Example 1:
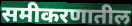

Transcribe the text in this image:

समीकरणातील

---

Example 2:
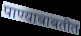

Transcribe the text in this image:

पाण्याबाबतीत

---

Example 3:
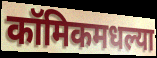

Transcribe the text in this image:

कॉमिकमधल्या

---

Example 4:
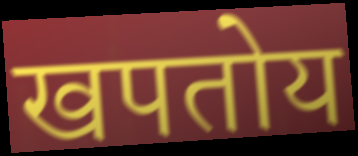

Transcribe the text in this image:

खपतोय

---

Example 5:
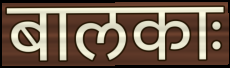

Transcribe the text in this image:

बालकाः